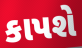
કાપશે